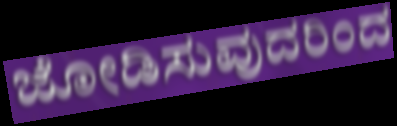
ಜೋಡಿಸುವುದರಿಂದ